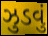
ઝુડવું